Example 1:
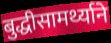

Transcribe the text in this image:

बुद्धीसामर्थ्याने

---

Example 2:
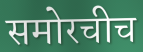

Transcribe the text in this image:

समोरचीच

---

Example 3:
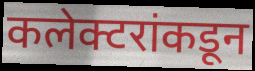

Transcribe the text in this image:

कलेक्टरांकडून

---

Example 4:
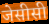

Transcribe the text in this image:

जेसीसी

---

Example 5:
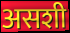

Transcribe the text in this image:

असशी